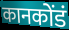
कानकोंडं